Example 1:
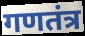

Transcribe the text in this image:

गणतंत्र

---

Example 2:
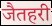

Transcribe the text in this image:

जैतहरी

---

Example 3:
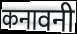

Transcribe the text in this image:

कनावनी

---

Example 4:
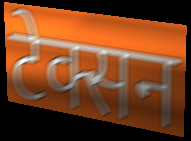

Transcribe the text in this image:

टेक्सन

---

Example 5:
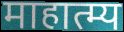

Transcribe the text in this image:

माहात्म्य